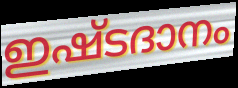
ഇഷ്ടദാനം